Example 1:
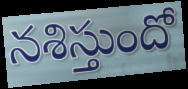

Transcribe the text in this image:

నశిస్తుందో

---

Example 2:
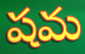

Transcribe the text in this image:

షమ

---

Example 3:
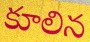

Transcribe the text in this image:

కూలిన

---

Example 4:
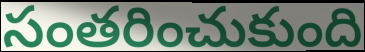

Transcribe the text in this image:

సంతరించుకుంది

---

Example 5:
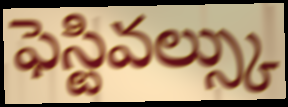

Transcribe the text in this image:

ఫెస్టివల్స్కు